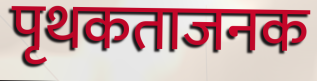
पृथकताजनक